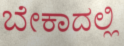
ಬೇಕಾದಲ್ಲಿ